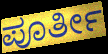
ಪೂರ್ತೀ